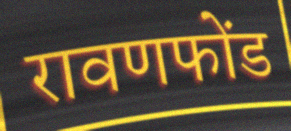
रावणफोंड